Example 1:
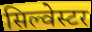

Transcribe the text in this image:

सिल्वेस्टर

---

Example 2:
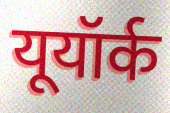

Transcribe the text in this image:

यूयॉर्क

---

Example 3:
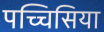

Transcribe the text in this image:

पच्चिसिया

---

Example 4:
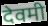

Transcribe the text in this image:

देवमी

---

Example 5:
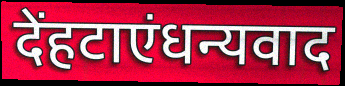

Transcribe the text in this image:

देंहटाएंधन्यवाद